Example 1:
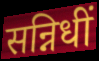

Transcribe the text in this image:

सन्निधीं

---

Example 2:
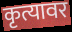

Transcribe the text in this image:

कृत्यावर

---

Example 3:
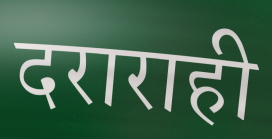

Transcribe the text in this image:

दराराही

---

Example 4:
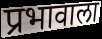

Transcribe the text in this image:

प्रभावाला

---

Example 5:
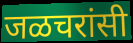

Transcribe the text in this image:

जळचरांसी